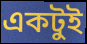
একটুই